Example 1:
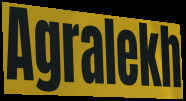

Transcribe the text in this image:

Agralekh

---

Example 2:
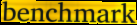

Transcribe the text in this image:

benchmark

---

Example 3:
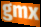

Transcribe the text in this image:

gmx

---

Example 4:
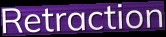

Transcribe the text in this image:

Retraction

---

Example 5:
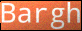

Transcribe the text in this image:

Bargh